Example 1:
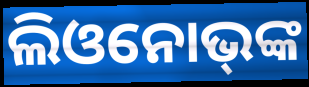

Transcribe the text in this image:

ଲିଓନୋଭ୍‌ଙ୍କ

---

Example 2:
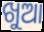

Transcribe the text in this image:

ଖୁଆ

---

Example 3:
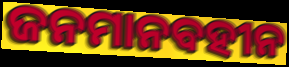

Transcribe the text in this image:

ଜନମାନବହୀନ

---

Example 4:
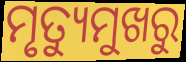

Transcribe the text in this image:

ମୃତ୍ୟୁମୁଖରୁ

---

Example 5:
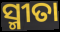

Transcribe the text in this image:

ସ୍ମୀତା